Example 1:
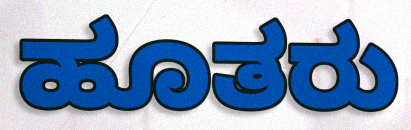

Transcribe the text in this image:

ಹೂತರು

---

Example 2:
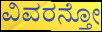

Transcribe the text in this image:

ವಿವರನ್ತೋ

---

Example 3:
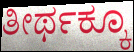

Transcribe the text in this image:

ತೀರ್ಥಕ್ಕೂ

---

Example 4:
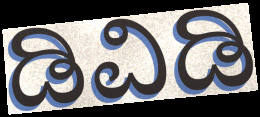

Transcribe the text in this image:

ಡಿವಿಡಿ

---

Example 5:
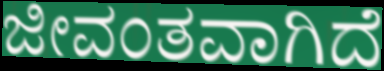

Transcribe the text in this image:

ಜೀವಂತವಾಗಿದೆ